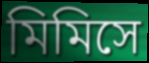
মিমিসে